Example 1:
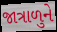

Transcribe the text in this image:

જાત્રાળુને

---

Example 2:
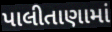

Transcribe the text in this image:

પાલીતાણામાં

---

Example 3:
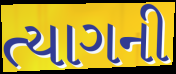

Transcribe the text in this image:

ત્‍યાગની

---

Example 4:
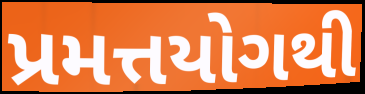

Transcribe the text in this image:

પ્રમત્તયોગથી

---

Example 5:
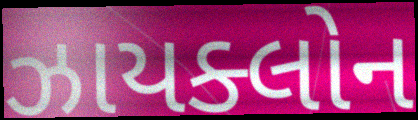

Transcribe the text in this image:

ઝાયક્લોન